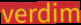
verdim